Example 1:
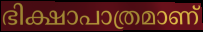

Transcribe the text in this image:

ഭിക്ഷാപാത്രമാണ്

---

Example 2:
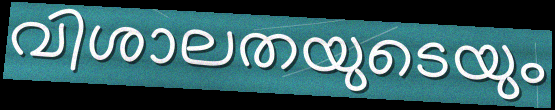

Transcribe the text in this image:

വിശാലതയുടെയും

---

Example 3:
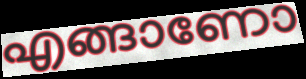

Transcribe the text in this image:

എങ്ങാണോ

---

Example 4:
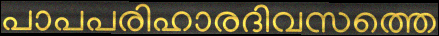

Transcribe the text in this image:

പാപപരിഹാരദിവസത്തെ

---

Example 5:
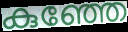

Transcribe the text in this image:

കുഞ്ഞേ